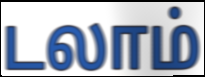
டலாம்